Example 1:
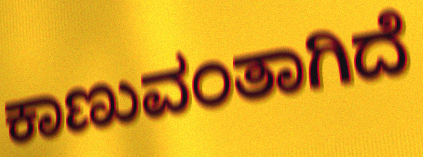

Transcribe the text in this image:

ಕಾಣುವಂತಾಗಿದೆ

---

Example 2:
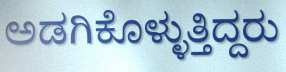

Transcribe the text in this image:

ಅಡಗಿಕೊಳ್ಳುತ್ತಿದ್ದರು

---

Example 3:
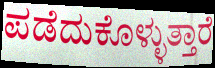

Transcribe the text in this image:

ಪಡೆದುಕೊಳ್ಳುತ್ತಾರೆ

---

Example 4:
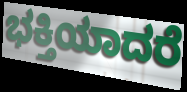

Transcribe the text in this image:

ಭಕ್ತಿಯಾದರೆ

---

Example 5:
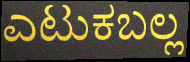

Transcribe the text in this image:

ಎಟುಕಬಲ್ಲ